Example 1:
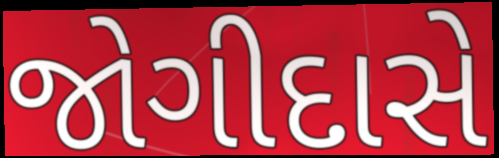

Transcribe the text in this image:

જોગીદાસે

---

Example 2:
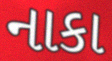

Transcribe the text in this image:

નાકા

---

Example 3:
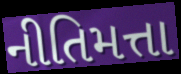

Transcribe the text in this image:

નીતિમત્તા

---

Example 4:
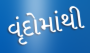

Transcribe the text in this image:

વૃંદોમાંથી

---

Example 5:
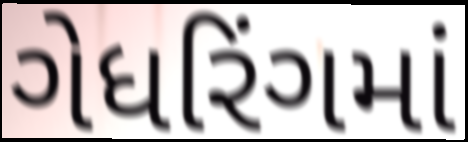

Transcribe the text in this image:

ગેધરિંગમાં